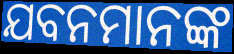
ଯବନମାନଙ୍କ